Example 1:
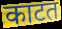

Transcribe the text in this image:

काटत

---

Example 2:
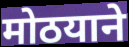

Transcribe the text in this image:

मोठयाने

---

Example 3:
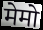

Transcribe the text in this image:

मेमो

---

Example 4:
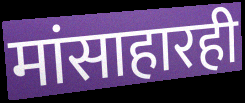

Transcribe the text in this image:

मांसाहारही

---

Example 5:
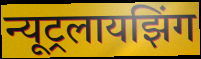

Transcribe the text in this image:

न्यूट्रलायझिंग